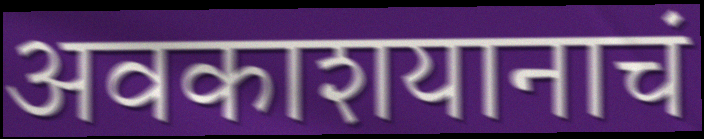
अवकाशयानाचं